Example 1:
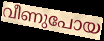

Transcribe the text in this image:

വീണുപോയ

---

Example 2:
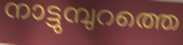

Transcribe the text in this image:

നാട്ടുമ്പുറത്തെ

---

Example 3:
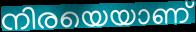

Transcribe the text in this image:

നിരയെയാണ്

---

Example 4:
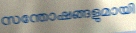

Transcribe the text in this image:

സന്തോഷങ്ങളുമായി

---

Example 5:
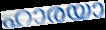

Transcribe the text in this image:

ഹാരയാ